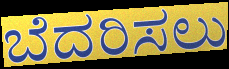
ಬೆದರಿಸಲು